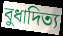
বুধাদিত্য